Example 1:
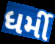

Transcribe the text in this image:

ધર્મી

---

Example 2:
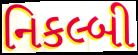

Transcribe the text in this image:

નિકલ્બી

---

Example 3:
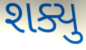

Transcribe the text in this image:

શક્યુ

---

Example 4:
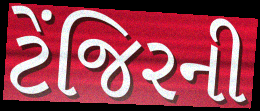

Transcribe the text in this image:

ટેંજિરની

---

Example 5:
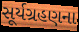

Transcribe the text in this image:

સૂર્યગ્રહણના